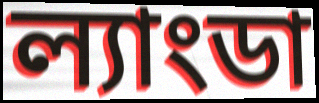
ল্যাংডা